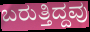
ಬರುತ್ತಿದ್ದವು